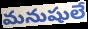
మనుషులే